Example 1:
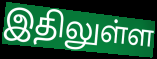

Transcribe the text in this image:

இதிலுள்ள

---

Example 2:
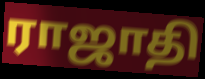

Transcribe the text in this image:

ராஜாதி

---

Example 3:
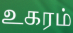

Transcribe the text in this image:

உகரம்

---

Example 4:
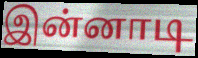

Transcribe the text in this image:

இன்னாடி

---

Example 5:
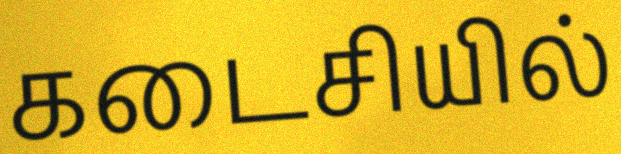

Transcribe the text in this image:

கடைசியில்